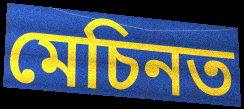
মেচিনত